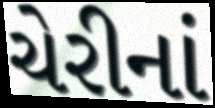
ચેરીનાં